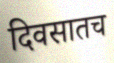
दिवसातच